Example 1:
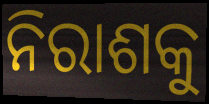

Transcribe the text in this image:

ନିରାଶକୁ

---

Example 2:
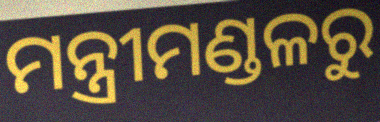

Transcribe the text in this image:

ମନ୍ତ୍ରୀମଣ୍ଡଳରୁ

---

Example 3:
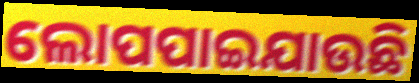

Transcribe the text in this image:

ଲୋପପାଇଯାଉଛି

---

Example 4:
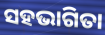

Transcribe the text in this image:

ସହଭାଗିତା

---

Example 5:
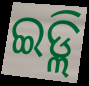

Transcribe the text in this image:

ଇଡ୍ଲି